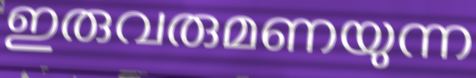
ഇരുവരുമണയുന്ന